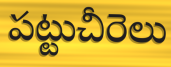
పట్టుచీరెలు